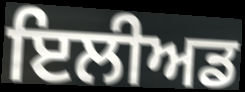
ਇਲੀਅਡ